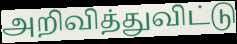
அறிவித்துவிட்டு